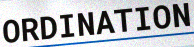
ORDINATION